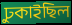
ঢুকাইছিল